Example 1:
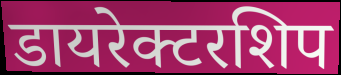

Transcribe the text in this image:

डायरेक्टरशिप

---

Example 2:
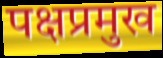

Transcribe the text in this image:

पक्षप्रमुख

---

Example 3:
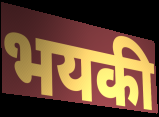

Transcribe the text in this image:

भयकी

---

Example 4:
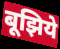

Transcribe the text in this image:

बूझिये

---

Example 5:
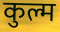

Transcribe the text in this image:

कुल्म